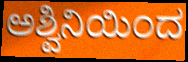
ಅಶ್ವಿನಿಯಿಂದ